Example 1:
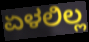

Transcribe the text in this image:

ಏಳಲಿಲ್ಲ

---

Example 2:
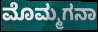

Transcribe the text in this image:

ಮೊಮ್ಮಗನಾ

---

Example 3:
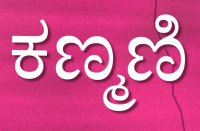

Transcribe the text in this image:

ಕಣ್ಮಣಿ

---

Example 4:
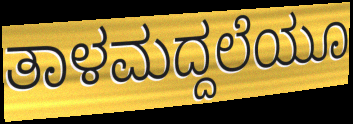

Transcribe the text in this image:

ತಾಳಮದ್ದಲೆಯೂ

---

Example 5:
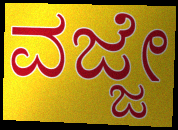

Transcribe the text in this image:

ವಜ್ಜೇ